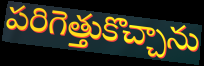
పరిగెత్తుకొచ్చాను